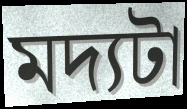
মদ্যটা